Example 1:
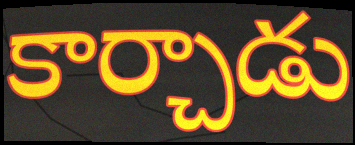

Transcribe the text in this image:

కార్చాడు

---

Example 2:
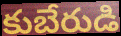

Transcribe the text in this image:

కుబేరుడి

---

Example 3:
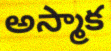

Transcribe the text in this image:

అస్మాక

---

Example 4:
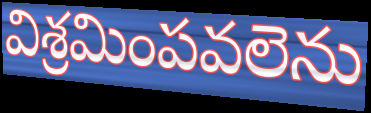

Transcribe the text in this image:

విశ్రమింపవలెను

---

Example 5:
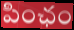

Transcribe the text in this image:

పింఛం